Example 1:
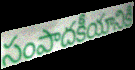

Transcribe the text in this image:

సంపాదకీయానికి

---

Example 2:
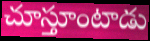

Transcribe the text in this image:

చూస్తూంటాడు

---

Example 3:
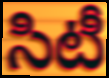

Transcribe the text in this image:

సిటీ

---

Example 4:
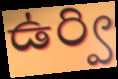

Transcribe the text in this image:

ఉర్వి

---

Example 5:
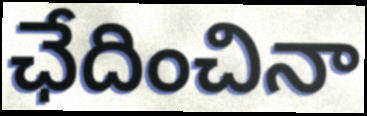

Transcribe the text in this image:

ఛేదించినా